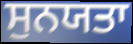
ਸੁਨਯਤਾ